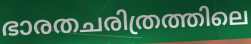
ഭാരതചരിത്രത്തിലെ